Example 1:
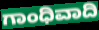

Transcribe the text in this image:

ಗಾಂಧಿವಾದಿ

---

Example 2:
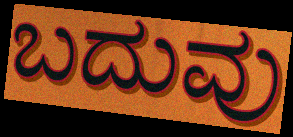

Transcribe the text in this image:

ಬದುವು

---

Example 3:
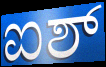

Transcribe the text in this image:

ಐಶ್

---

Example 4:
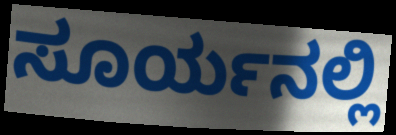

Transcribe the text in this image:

ಸೂರ್ಯನಲ್ಲಿ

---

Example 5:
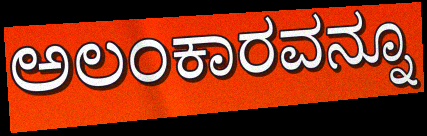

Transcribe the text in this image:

ಅಲಂಕಾರವನ್ನೂ